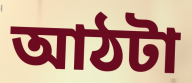
আঠটা